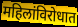
महिलांविरोधात